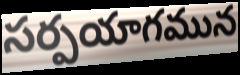
సర్పయాగమున